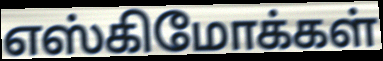
எஸ்கிமோக்கள்